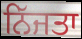
ਨਿੱਜਤਾ